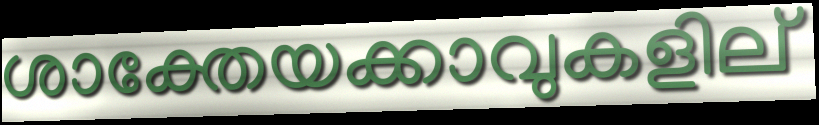
ശാക്തേയക്കാവുകളില്